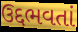
ઉદ્દભવતાં